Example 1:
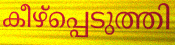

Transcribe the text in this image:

കീഴ്പ്പെടുത്തി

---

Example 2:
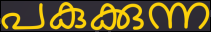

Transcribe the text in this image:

പകുക്കുന്ന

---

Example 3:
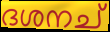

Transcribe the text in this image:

ദശനച്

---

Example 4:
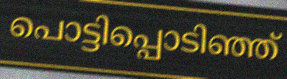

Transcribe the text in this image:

പൊട്ടിപ്പൊടിഞ്ഞ്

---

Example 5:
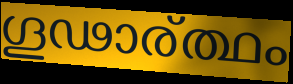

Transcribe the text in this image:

ഗൂഢാര്ത്ഥം